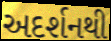
અદર્શનથી